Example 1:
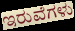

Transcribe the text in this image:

ಇರುವೆಗಳು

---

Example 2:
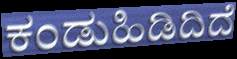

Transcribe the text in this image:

ಕಂಡುಹಿಡಿದಿದೆ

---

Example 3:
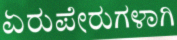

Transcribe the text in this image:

ಏರುಪೇರುಗಳಾಗಿ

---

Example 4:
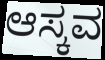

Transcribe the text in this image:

ಆಸ್ಕವ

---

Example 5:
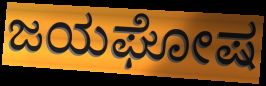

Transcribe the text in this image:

ಜಯಘೋಷ